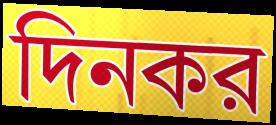
দিনকর